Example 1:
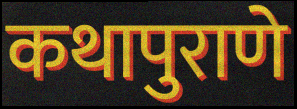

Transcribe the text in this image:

कथापुराणे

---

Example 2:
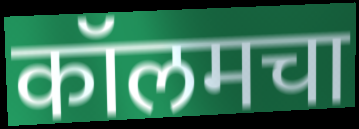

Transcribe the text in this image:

कॉलमचा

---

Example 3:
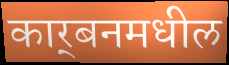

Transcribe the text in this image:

कार्बनमधील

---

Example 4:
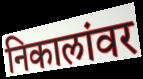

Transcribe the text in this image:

निकालांवर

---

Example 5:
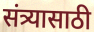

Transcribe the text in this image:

संत्र्यासाठी